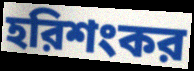
হরিশংকর